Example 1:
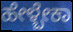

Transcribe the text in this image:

ಹೇಳ್ಬೇಕಾ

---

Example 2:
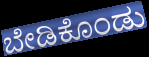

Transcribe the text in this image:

ಬೇಡಿಕೊಂಡು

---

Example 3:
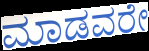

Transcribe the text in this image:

ಮಾಡವರೇ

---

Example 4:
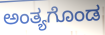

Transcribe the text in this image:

ಅಂತ್ಯಗೊಂಡ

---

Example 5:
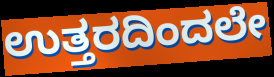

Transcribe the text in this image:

ಉತ್ತರದಿಂದಲೇ